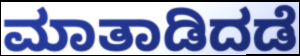
ಮಾತಾಡಿದಡೆ